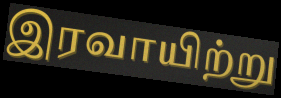
இரவாயிற்று